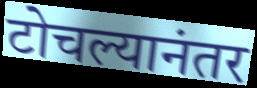
टोचल्यानंतर